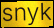
snyk